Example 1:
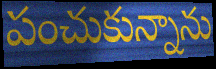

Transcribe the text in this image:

పంచుకున్నాను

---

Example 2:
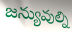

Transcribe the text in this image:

జన్యువుల్ని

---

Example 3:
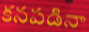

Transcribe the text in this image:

కనపడినా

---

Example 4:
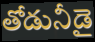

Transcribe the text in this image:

తోడునీడై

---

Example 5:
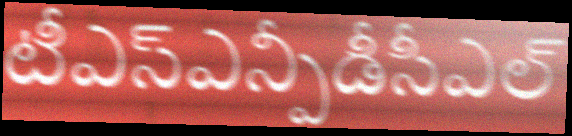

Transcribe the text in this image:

టీఎస్ఎన్పీడీసీఎల్